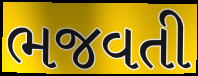
ભજવતી